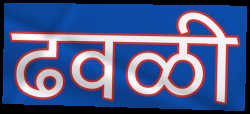
ढवळी